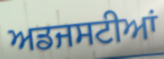
ਅਡਜਸਟੀਆਂ